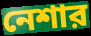
নেশার